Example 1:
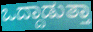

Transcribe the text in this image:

ಒದ್ದಾಡುತ್ತಾ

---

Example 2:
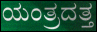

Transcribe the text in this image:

ಯಂತ್ರದತ್ತ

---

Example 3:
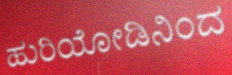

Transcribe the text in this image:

ಹುರಿಯೋಡಿನಿಂದ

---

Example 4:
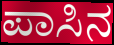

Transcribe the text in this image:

ಪಾಸಿನ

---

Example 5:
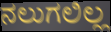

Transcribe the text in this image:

ನಲುಗಲಿಲ್ಲ